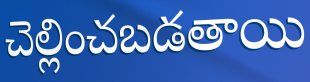
చెల్లించబడతాయి